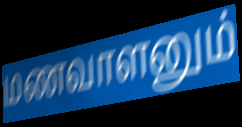
மணவாளனும்